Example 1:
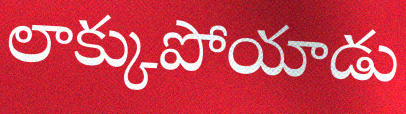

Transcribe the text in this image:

లాక్కుపోయాడు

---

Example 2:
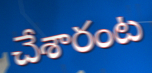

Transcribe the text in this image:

చేశారంట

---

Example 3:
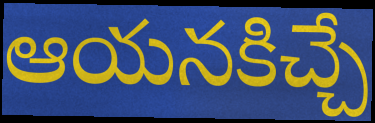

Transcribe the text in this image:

ఆయనకిచ్చే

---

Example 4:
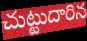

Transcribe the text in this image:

చుట్టుదారిన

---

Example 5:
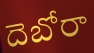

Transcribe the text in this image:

దెబోరా